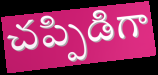
చప్పిడిగా